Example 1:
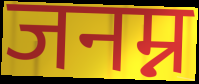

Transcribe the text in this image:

जनम्न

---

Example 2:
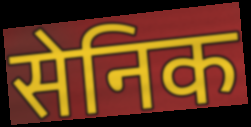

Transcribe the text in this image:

सेनिक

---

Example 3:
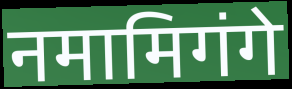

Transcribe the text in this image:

नमामिगंगे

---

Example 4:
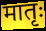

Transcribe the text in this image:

मातृः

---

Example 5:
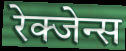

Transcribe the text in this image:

रेक्जेन्स